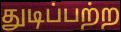
துடிப்பற்ற